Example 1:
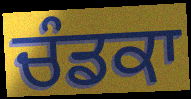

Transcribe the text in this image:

ਚੰਡਕਾ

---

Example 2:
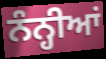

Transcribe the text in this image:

ਨੰਨ੍ਹੀਆਂ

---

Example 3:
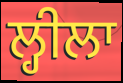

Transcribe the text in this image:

ਲ੍ਹੀਲਾ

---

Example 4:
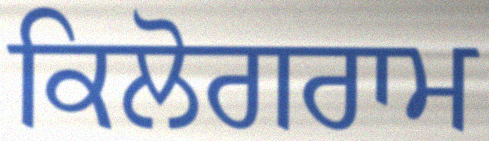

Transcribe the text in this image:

ਕਿਲੋਗਰਾਮ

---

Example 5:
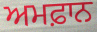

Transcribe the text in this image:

ਅਮਫ਼ਾਨ